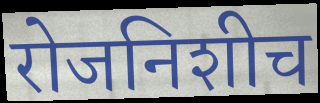
रोजनिशीच